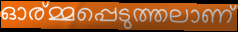
ഓര്മ്മപ്പെടുത്തലാണ്